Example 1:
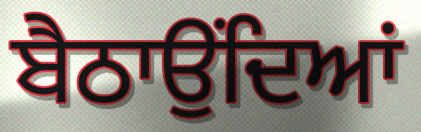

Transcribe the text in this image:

ਬੈਠਾਉਂਦਿਆਂ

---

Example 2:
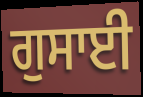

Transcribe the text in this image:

ਗੁਸਾਈ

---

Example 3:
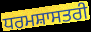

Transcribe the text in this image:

ਧਰਮਸ਼ਾਸਤਰੀ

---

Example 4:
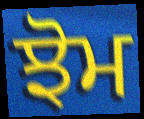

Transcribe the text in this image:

ਝੋਮ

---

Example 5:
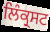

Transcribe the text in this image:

ਲਿੰਕ੍ਰਸਟ